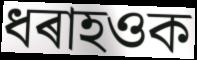
ধৰাহওক